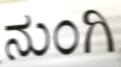
ನುಂಗಿ